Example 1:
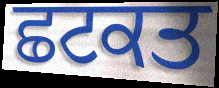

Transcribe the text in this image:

ਛਟਕਤ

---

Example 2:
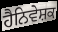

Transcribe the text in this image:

ਹੈਨਿਵੇਸ਼ਕ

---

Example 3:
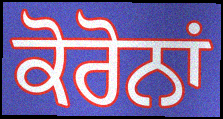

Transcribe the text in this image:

ਕੋਰੋਨਾਂ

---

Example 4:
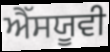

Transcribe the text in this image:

ਐੱਸਯੂਵੀ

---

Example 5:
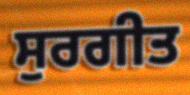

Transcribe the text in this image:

ਸੁਰਗੀਤ